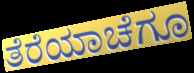
ತೆರೆಯಾಚೆಗೂ